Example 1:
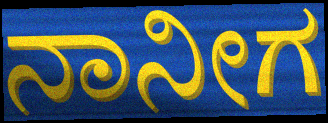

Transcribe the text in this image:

ನಾನೀಗ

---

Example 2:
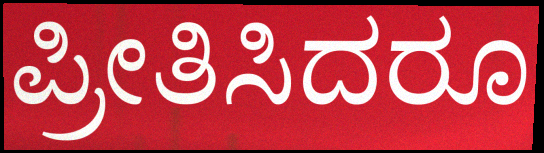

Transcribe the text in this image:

ಪ್ರೀತಿಸಿದರೂ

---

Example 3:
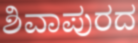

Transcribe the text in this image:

ಶಿವಾಪುರದ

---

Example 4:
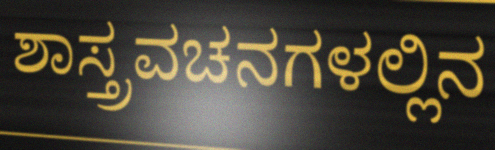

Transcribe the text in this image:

ಶಾಸ್ತ್ರವಚನಗಳಲ್ಲಿನ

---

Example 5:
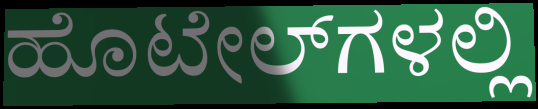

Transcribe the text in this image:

ಹೊಟೇಲ್‌ಗಳಲ್ಲಿ